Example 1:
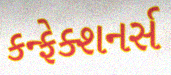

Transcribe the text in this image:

કન્ફેક્શનર્સ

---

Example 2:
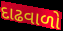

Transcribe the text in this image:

દાઢવાળો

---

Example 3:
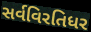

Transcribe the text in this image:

સર્વવિરતિધર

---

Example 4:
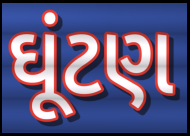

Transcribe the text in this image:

ઘૂંટણ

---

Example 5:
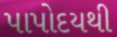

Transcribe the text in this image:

પાપોદયથી